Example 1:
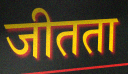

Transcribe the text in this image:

जीतता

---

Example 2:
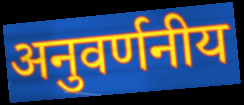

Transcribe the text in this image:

अनुवर्णनीय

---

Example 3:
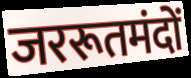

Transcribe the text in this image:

जररूतमंदों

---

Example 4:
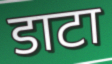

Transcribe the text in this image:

डाटा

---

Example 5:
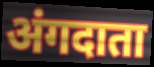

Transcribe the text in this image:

अंगदाता